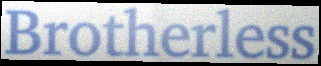
Brotherless